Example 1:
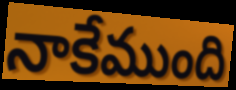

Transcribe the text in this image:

నాకేముంది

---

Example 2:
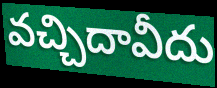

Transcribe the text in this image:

వచ్చిదావీదు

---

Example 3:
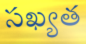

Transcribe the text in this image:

సఖ్యత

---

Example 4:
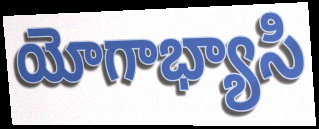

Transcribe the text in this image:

యోగాభ్యాసి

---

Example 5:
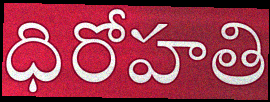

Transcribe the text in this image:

ధిరోహతి